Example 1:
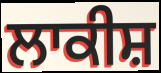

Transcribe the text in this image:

ਲਾਕੀਸ਼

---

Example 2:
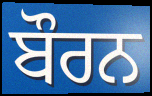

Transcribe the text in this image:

ਬੌਰਨ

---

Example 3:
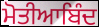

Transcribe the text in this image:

ਮੋਤੀਆਬਿੰਦ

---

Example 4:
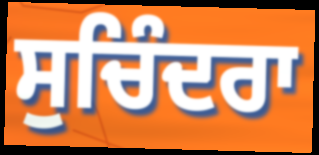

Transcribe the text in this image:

ਸੁਚਿੰਦਰਾ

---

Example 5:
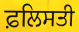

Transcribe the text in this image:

ਫ਼ਲਿਸਤੀ